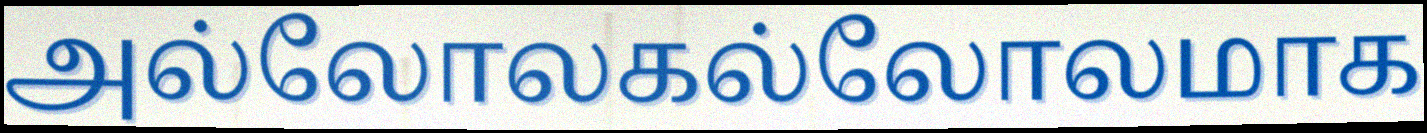
அல்லோலகல்லோலமாக